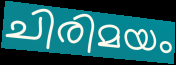
ചിരിമയം